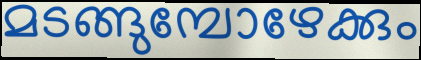
മടങ്ങുമ്പോഴേക്കും